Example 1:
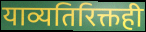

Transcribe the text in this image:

याव्यतिरिक्तही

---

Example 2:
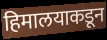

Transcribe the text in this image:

हिमालयाकडून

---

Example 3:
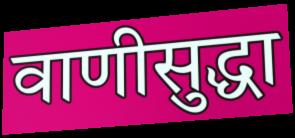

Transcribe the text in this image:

वाणीसुद्धा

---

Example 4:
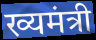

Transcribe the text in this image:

ख्यमंत्री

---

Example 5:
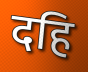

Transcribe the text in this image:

दहि